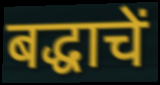
बद्धाचें